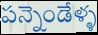
పన్నెండేళ్ళ